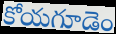
కోయగూడెం